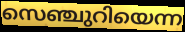
സെഞ്ചുറിയെന്ന